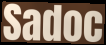
Sadoc